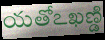
యతోఽఖణ్డి